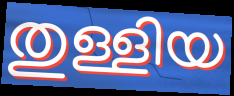
തുള്ളിയ